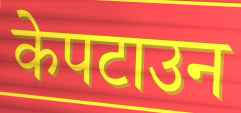
केपटाउन